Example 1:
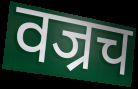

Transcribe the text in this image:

वज्रच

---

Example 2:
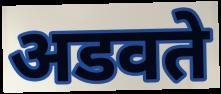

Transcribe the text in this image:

अडवते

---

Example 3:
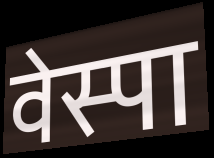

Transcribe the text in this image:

वेस्पा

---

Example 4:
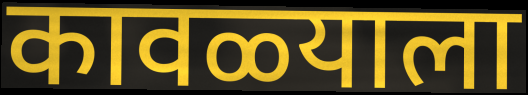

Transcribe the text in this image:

कावळ्याला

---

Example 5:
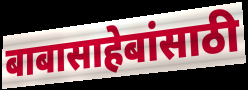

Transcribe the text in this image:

बाबासाहेबांसाठी